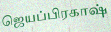
ஜெயப்பிரகாஷ்